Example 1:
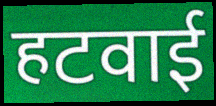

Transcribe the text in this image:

हटवाई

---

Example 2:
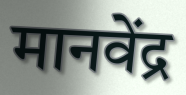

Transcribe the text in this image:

मानवेंद्र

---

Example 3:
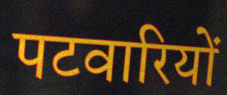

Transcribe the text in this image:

पटवारियों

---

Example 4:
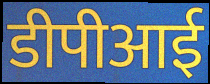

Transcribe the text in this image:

डीपीआई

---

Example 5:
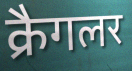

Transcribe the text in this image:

क्रैगलर